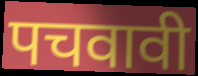
पचवावी